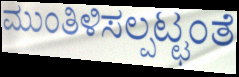
ಮುಂತಿಳಿಸಲ್ಪಟ್ಟಂತೆ